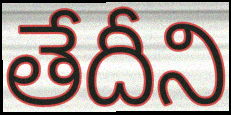
తేదీని